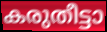
കരുതീട്ടാ